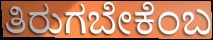
ತಿರುಗಬೇಕೆಂಬ